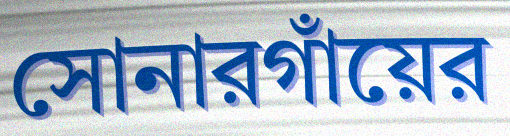
সোনারগাঁয়ের